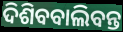
ଦିଶିବବାଲିବନ୍ତ